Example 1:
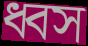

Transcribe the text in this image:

ধ্বস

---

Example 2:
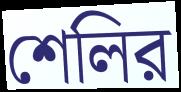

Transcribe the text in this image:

শেলির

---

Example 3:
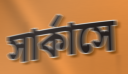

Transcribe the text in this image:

সার্কাসে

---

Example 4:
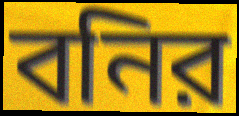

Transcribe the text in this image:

বনির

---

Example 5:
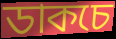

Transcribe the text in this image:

ডাকচে